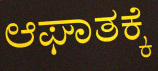
ಆಘಾತಕ್ಕೆ